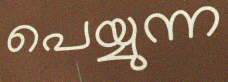
പെയ്യുന്ന